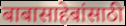
बाबासाहेबांसाठी